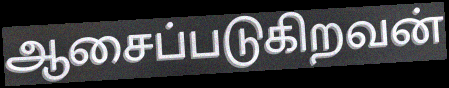
ஆசைப்படுகிறவன்